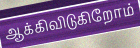
ஆக்கிவிடுகிறோம்